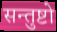
सन्तुष्टो